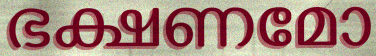
ഭക്ഷണമോ